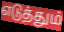
எடுத்தும்